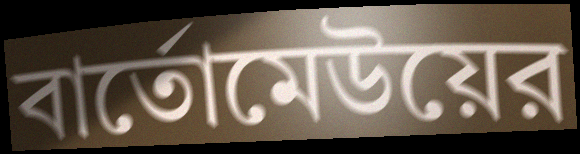
বার্তোমেউয়ের